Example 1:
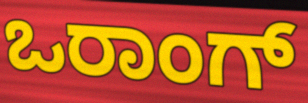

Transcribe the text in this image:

ಒರಾಂಗ್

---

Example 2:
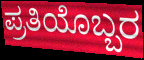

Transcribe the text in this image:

ಪ್ರತಿಯೊಬ್ಬರ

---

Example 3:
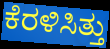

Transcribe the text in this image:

ಕೆರಳಿಸಿತ್ತು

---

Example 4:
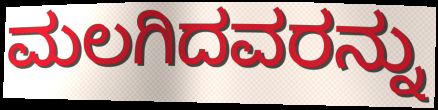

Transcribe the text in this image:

ಮಲಗಿದವರನ್ನು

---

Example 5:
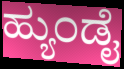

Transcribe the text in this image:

ಹ್ಯುಂಡೈ